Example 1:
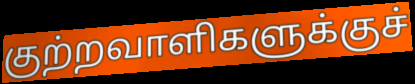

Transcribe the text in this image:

குற்றவாளிகளுக்குச்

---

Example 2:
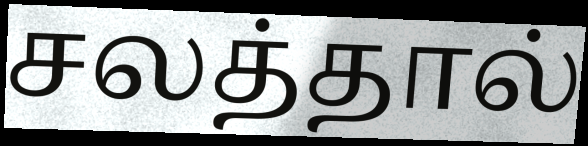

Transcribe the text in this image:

சலத்தால்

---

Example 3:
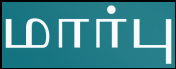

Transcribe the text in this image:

மார்பு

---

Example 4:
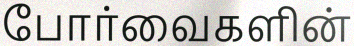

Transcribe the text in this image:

போர்வைகளின்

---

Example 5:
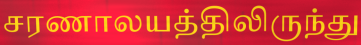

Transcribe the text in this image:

சரணாலயத்திலிருந்து